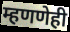
म्हणणेही